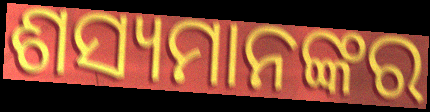
ଶସ୍ୟମାନଙ୍କର